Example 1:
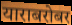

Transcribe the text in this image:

याराबरोबर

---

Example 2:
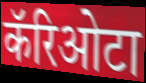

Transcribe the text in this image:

कॅरिओटा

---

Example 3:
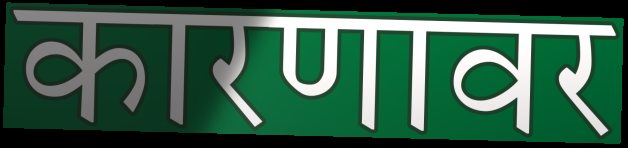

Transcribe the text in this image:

कारणावर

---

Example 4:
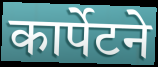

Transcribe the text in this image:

कार्पेटने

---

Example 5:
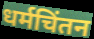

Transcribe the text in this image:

धर्मचिंतन